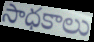
సాధకాలు